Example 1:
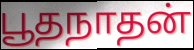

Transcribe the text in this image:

பூதநாதன்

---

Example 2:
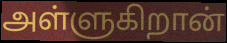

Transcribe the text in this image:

அள்ளுகிறான்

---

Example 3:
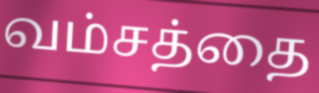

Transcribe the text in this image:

வம்சத்தை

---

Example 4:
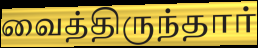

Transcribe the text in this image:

வைத்திருந்தார்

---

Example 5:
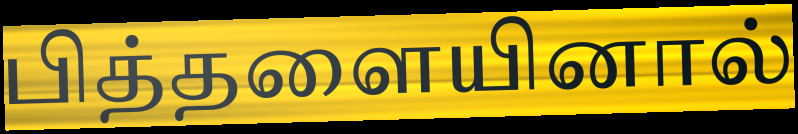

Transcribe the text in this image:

பித்தளையினால்